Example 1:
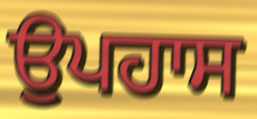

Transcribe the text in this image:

ਉਪਹਾਸ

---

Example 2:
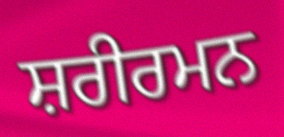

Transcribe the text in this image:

ਸ਼ਰੀਰਮਨ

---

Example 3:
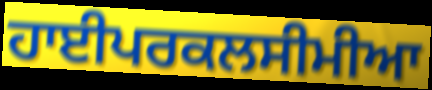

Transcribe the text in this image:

ਹਾਈਪਰਕਲਸੀਮੀਆ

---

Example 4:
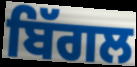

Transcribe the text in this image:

ਬਿੱਗਲ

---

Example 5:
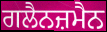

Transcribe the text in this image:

ਗਲੈਨਜ਼ਮੈਨ